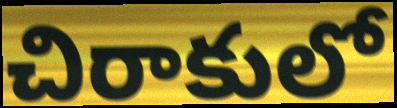
చిరాకులో